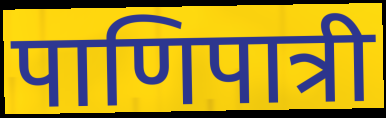
पाणिपात्री